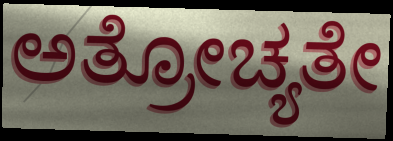
ಅತ್ರೋಚ್ಯತೇ